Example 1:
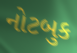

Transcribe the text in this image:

નોટબુક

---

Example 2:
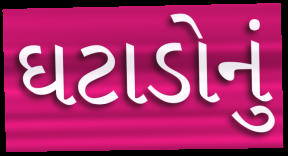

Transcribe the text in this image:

ઘટાડોનું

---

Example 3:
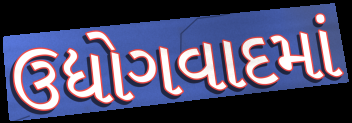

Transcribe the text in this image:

ઉદ્યોગવાદમાં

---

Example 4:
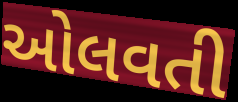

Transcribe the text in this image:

ઓલવતી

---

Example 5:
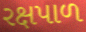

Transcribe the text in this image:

રક્ષપાળ